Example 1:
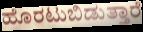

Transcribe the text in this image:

ಹೊರಟುಬಿಡುತ್ತಾರೆ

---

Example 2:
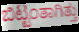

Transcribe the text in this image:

ಬಿಟ್ಟಂತಾಗಿತ್ತು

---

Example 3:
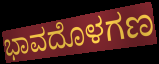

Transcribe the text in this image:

ಭಾವದೊಳಗಣ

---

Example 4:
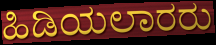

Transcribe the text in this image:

ಹಿಡಿಯಲಾರರು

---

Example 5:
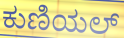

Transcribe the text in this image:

ಕುಣಿಯಲ್